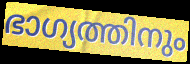
ഭാഗ്യത്തിനും